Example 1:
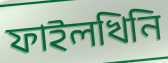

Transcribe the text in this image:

ফাইলখিনি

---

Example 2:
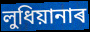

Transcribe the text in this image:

লুধিয়ানাৰ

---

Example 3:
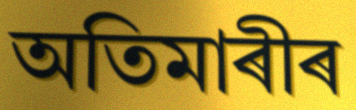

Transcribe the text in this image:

অতিমাৰীৰ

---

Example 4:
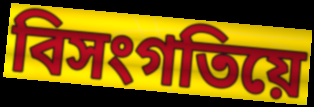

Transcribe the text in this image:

বিসংগতিয়ে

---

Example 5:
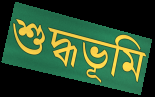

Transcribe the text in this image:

শুদ্ধভূমি